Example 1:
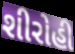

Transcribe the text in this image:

શીરોહી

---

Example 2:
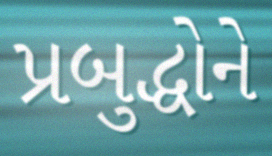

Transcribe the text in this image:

પ્રબુદ્ધોને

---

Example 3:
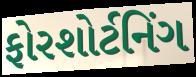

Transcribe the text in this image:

ફોરશોર્ટનિંગ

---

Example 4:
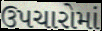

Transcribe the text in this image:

ઉપચારોમાં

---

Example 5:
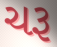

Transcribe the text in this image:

ચરૂ